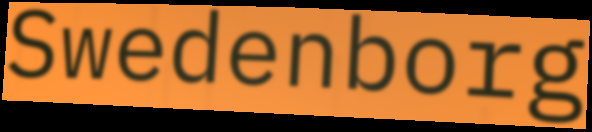
Swedenborg